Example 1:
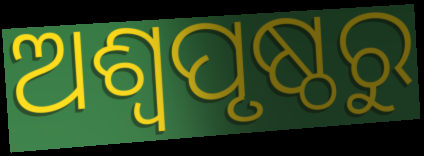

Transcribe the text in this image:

ଅଶ୍ଵପୃଷ୍ଠରୁ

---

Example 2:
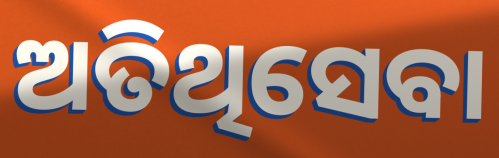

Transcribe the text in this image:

ଅତିଥିସେବା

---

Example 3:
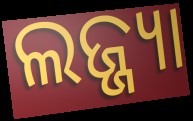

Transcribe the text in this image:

ଲଜ୍ଜ୍ୟା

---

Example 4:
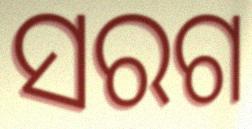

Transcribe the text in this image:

ସରଗ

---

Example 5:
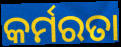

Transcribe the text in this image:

କର୍ମରତା